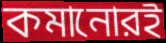
কমানোরই